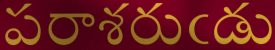
పరాశరుఁడు